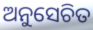
ଅନୁସେଚିତ